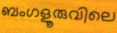
ബംഗളൂരുവിലെ